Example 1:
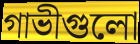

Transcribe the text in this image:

গাভীগুলো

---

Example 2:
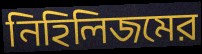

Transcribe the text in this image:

নিহিলিজমের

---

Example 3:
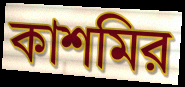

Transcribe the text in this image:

কাশমির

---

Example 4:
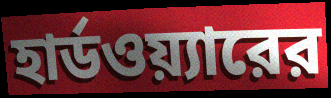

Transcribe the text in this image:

হার্ডওয়্যারের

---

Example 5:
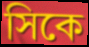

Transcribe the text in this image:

সিকে